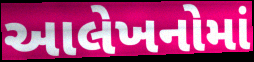
આલેખનોમાં